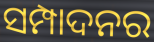
ସମ୍ପାଦନର